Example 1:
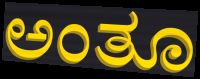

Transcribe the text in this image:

ಅಂತೂ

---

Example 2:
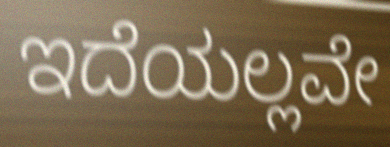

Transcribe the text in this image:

ಇದೆಯಲ್ಲವೇ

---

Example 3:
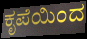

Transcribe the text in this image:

ಕೃಪೆಯಿಂದ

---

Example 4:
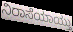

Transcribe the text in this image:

ನಿರಾಸೆಯಾಯ್ತು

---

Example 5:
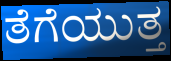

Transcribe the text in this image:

ತೆಗೆಯುತ್ತ